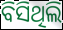
ବିସିଥିଲି